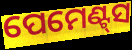
ପେମେଣ୍ଟ୍‌ସ